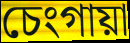
চেংগায়া